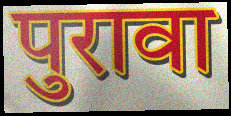
पुरावा